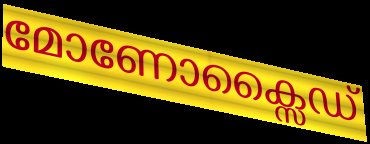
മോണോക്സൈഡ്